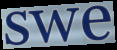
swe